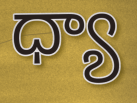
ధ్యా